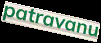
patravanu